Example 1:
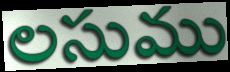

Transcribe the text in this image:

లసుము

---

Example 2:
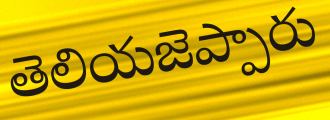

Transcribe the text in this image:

తెలియజెప్పారు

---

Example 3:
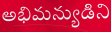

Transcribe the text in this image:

అభిమన్యుడిని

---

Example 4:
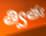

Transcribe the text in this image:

త్వితః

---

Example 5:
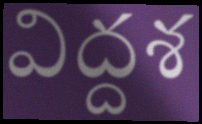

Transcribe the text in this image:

విద్దశ